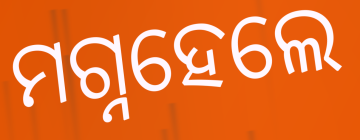
ମଗ୍ନହେଲେ